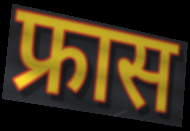
फ्रास